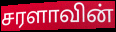
சரளாவின்